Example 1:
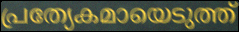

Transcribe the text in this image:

പ്രത്യേകമായെടുത്ത്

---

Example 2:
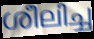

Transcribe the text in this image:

ശീലിച്ച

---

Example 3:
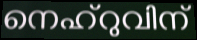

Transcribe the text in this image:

നെഹ്റുവിന്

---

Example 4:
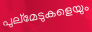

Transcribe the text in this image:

പുല്മേടുകളെയും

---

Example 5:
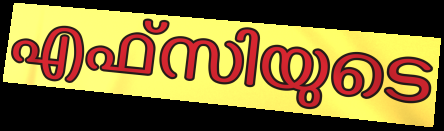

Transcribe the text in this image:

എഫ്സിയുടെ